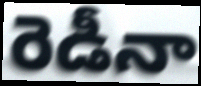
రెడీనా